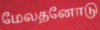
மேலதனோடு